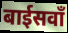
बाईसवाँ